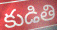
కుడితి